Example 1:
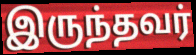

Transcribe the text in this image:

இருந்தவர்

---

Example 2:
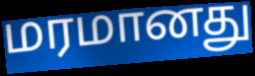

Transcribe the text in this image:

மரமானது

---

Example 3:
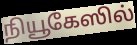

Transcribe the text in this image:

நியூகேஸில்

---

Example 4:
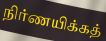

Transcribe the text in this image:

நிர்ணயிக்கத்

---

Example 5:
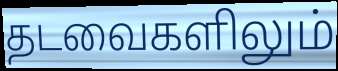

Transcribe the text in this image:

தடவைகளிலும்